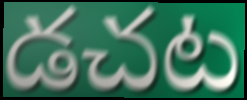
డచట